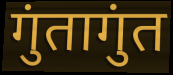
गुंतागुंत